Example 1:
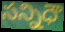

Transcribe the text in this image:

సన్నిధౌ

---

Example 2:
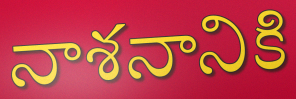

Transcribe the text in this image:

నాశనానికి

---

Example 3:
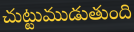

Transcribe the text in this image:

చుట్టుముడుతుంది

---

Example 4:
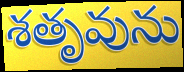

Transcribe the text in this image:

శతృవును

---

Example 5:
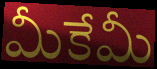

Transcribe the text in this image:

మీకేమీ